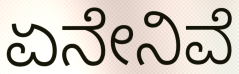
ಏನೇನಿವೆ